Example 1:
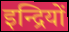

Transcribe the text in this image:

इन्द्रियों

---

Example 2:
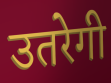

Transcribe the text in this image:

उतरेगी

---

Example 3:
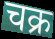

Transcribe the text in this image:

चक्र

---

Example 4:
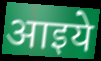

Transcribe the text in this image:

आइये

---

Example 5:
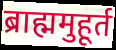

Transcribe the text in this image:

ब्राह्ममुहूर्त